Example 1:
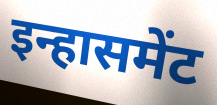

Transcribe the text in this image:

इन्हासमेंट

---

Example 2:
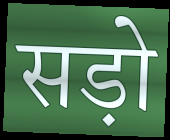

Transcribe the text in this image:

सड़ो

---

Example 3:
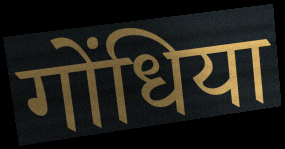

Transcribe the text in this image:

गोंधिया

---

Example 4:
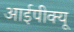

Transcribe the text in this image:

आईपीक्यू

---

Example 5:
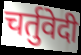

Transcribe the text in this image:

चर्तुवेदी